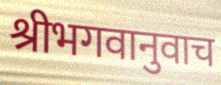
श्रीभगवानुवाच